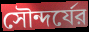
সৌন্দর্যের